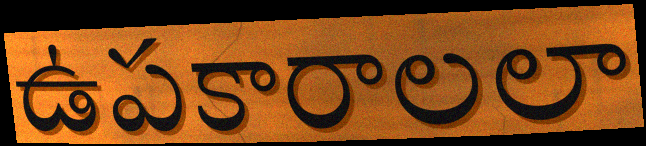
ఉపకారాలలా